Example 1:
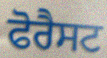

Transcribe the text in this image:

ਫੋਰੈਸਟ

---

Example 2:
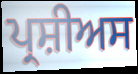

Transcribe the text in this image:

ਪ੍ਰਸ਼ੀਅਸ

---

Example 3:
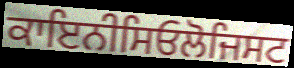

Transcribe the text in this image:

ਕਾਇਨੀਸਿਓਲੋਜਿਸਟ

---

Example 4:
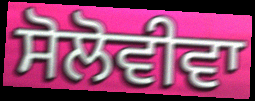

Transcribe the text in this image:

ਸੋਲੋਵੀਵਾ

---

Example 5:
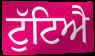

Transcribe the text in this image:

ਟੁੱਟਿਐ